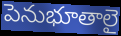
పెనుభూతాలై